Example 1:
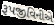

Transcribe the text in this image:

રૂપજીવિનીએ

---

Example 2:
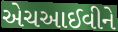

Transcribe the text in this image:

એચઆઈવીને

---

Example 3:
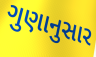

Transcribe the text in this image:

ગુણાનુસાર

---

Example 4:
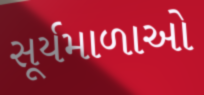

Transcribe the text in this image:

સૂર્યમાળાઓ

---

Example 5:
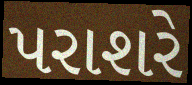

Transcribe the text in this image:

પરાશરે